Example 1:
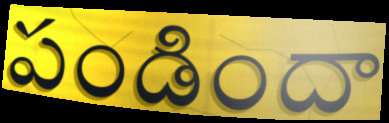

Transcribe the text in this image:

పండిందా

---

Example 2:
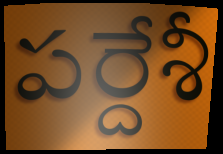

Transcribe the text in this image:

పర్దేశీ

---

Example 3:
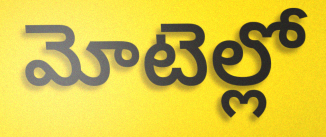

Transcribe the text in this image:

మోటెల్లో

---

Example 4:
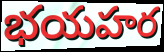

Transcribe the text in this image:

భయహర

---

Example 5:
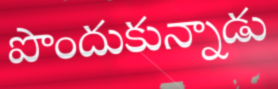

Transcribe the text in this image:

పొందుకున్నాడు